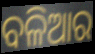
ବଳିଆର